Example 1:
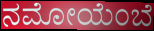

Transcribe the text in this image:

ನಮೋಯೆಂಬೆ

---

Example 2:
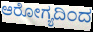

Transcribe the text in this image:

ಆರೋಗ್ಯದಿಂದ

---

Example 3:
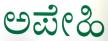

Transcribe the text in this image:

ಅಪೇಹಿ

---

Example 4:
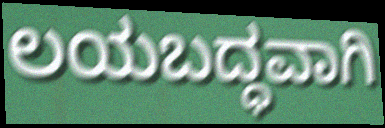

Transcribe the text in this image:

ಲಯಬದ್ಧವಾಗಿ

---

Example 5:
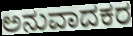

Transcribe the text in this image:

ಅನುವಾದಕರ